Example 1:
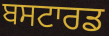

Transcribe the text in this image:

ਬਸਟਾਰਡ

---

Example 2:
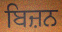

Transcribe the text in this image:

ਬਿਜ਼ਨ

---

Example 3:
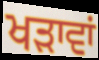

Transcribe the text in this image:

ਖੜਾਵਾਂ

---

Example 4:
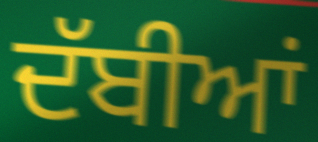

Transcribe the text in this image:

ਦੱਬੀਆਂ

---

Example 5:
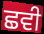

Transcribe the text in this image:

ਛਵੀ